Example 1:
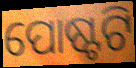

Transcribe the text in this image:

ପୋଷ୍ଟଟି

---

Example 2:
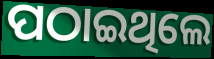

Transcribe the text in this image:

ପଠାଇଥିଲେ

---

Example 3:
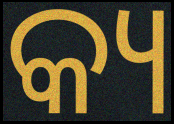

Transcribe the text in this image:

କ୍ୟ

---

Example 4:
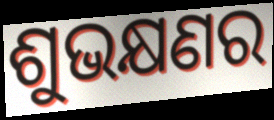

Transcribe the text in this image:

ଶୁଭକ୍ଷଣର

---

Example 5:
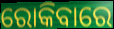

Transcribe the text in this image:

ରୋକିବାରେ